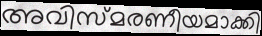
അവിസ്മരണീയമാക്കി